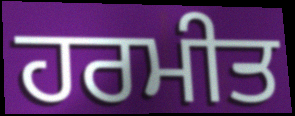
ਹਰਮੀਤ